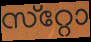
സ്‌റ്റോ